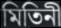
মিতিনী